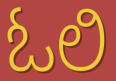
ಓಲಿ